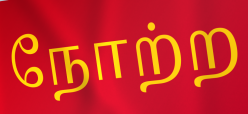
நோற்ற